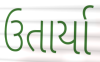
ઉતાર્યા